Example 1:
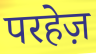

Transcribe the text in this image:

परहेज़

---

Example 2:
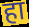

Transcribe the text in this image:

हा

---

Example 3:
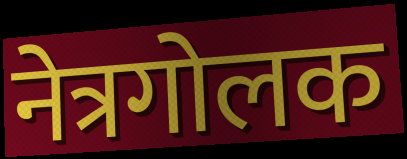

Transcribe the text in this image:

नेत्रगोलक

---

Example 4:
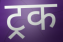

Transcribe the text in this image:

ट्रक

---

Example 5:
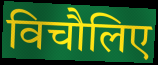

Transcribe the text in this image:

विचौलिए